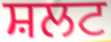
ਸ਼ਲਟ